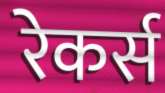
रेकर्स